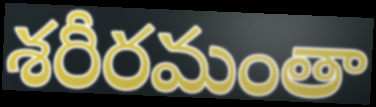
శరీరమంతా